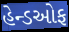
હેન્ડઓફ